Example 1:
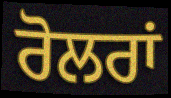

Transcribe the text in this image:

ਰੋਲਰਾਂ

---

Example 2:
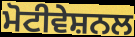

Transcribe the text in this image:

ਮੋਟੀਵੇਸ਼ਨਲ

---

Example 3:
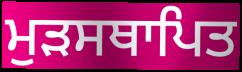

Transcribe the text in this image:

ਮੁੜਸਥਾਪਿਤ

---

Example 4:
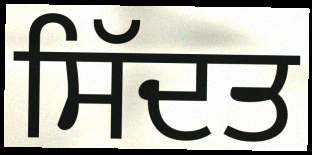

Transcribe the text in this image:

ਸਿੱਦਤ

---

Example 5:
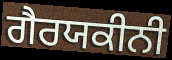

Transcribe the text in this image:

ਗੈਰਯਕੀਨੀ